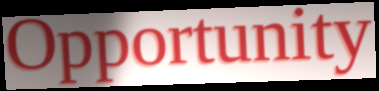
Opportunity